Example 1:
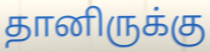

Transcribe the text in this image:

தானிருக்கு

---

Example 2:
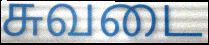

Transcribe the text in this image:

சுவடை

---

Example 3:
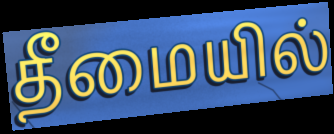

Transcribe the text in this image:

தீமையில்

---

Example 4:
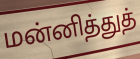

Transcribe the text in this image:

மன்னித்துத்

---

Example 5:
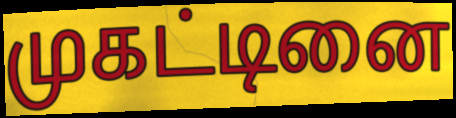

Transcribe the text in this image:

முகட்டினை